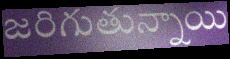
జరిగుతున్నాయి